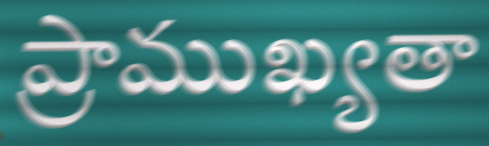
ప్రాముఖ్యతా